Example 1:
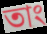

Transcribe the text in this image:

তাং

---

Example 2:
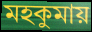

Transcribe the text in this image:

মহকুমায়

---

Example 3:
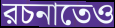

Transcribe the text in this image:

রচনাতেও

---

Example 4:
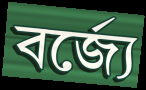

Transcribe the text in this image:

বর্জ্যে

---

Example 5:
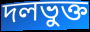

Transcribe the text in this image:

দলভুক্ত